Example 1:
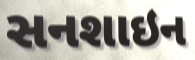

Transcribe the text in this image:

સનશાઇન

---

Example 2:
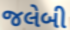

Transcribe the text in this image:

જલેબી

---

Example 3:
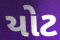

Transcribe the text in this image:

યોટ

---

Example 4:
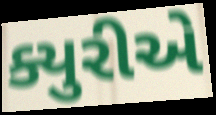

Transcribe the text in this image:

ક્યુરીએ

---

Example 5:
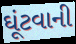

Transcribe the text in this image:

ઘૂંટવાની